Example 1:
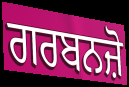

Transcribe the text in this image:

ਗਰਬਨਜ਼ੋ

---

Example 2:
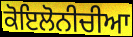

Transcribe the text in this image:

ਕੋਇਲੋਨੀਚੀਆ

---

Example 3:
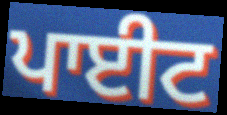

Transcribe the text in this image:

ਪਾਈਟ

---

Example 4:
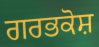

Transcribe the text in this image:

ਗਰਭਕੋਸ਼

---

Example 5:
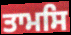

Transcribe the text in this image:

ਤਾਮਸਿ